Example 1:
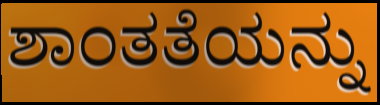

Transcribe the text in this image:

ಶಾಂತತೆಯನ್ನು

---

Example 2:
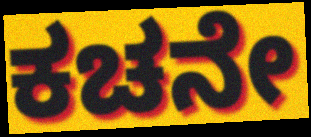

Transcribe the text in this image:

ಕಚನೇ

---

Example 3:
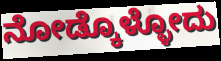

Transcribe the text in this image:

ನೋಡ್ಕೊಳ್ಳೋದು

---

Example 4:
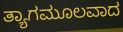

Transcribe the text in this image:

ತ್ಯಾಗಮೂಲವಾದ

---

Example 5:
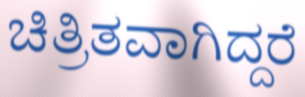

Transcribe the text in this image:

ಚಿತ್ರಿತವಾಗಿದ್ದರೆ